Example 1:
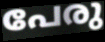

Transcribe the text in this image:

പേരു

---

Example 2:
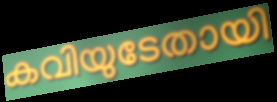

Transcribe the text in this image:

കവിയുടേതായി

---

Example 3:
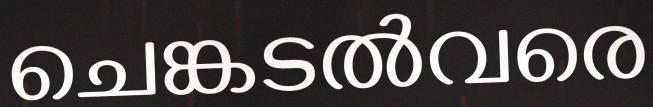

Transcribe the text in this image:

ചെങ്കടൽവരെ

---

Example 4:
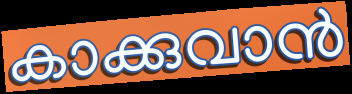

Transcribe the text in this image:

കാക്കുവാൻ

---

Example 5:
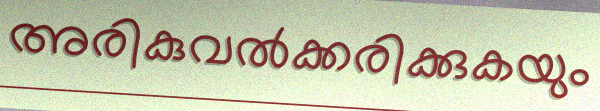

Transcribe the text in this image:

അരികുവൽക്കരിക്കുകയും